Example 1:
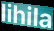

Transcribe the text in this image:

lihila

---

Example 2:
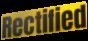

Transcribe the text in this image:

Rectified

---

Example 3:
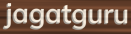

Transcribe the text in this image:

jagatguru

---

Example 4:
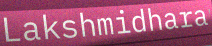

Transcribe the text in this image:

Lakshmidhara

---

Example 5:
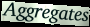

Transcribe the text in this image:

Aggregates